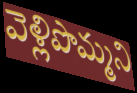
వెళ్లిపొమ్మని